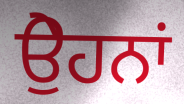
ਉੇਹਨਾਂ